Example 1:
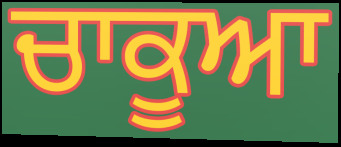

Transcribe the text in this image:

ਚਾਕੂਆ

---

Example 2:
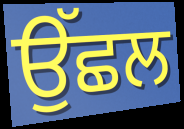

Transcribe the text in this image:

ਉੱਛਲ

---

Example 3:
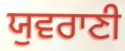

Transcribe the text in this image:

ਯੁਵਰਾਣੀ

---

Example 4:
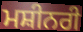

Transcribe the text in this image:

ਮਸ਼ੀਨਰੀ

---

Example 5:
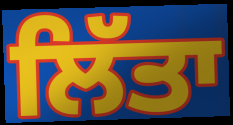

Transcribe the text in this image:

ਲਿੱਤਾ